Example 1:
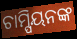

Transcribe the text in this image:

ଚାମ୍ପିୟନଙ୍କ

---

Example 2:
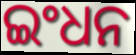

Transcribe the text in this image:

ଇଂଧନ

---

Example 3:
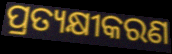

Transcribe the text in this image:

ପ୍ରତ୍ୟକ୍ଷୀକରଣ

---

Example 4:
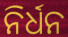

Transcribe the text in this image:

ନିର୍ଧନ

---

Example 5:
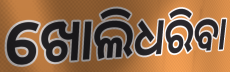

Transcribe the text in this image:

ଖୋଲିଧରିବା